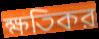
ক্ষতিকর